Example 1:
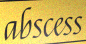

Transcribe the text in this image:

abscess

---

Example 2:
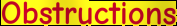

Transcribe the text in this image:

Obstructions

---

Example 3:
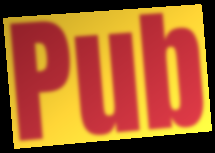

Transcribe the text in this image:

Pub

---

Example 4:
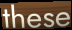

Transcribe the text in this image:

these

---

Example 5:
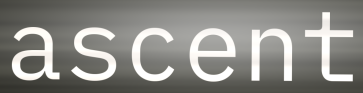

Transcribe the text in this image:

ascent